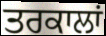
ਤਰਕਾਲਾਂ